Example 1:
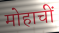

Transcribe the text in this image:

मोहाचीं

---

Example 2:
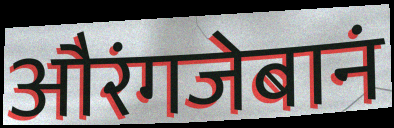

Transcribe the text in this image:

औरंगजेबानं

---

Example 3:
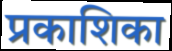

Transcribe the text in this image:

प्रकाशिका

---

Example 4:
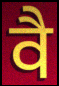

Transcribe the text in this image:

वै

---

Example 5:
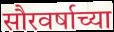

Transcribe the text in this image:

सौरवर्षाच्या